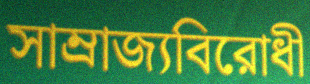
সাম্রাজ্যবিরোধী